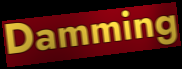
Damming